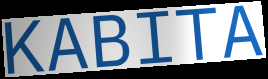
KABITA